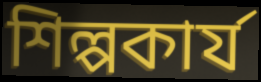
শিল্পকার্য